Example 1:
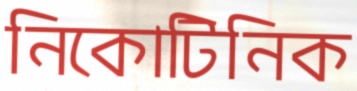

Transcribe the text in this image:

নিকোটিনিক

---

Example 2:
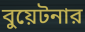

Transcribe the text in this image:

বুয়েটনার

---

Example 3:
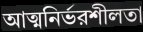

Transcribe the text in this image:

আত্মনির্ভরশীলতা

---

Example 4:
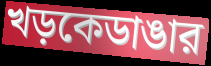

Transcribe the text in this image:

খড়কেডাঙার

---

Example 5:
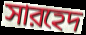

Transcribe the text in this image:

সারহেদ